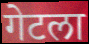
गेटला